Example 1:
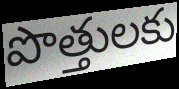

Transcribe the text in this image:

పొత్తులకు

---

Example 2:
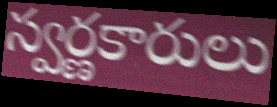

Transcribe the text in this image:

స్వర్ణకారులు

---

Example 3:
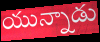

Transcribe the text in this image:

యున్నాడు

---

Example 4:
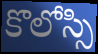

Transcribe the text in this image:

కొలోస్సి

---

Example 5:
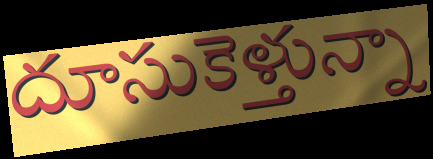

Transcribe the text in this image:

దూసుకెళ్తున్నా